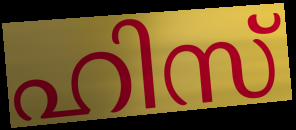
ഹിസ്